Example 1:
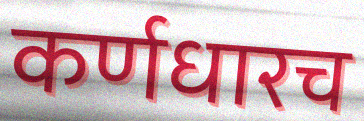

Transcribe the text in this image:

कर्णधारच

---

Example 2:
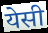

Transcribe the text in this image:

येसी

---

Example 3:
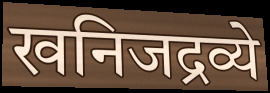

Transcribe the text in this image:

खनिजद्रव्ये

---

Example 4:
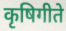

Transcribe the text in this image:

कृषिगीते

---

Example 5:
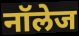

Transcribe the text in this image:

नॉलेज